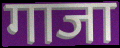
गाजा